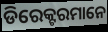
ଡିରେକ୍ଟରମାନେ